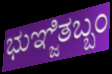
ಭುಞ್ಜಿತಬ್ಬಂ